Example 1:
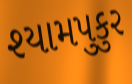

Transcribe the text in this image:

શ્યામપુકુર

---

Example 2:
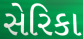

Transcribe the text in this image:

સેરિકા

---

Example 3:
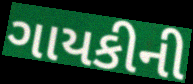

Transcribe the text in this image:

ગાયકીની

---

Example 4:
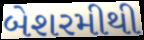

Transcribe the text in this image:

બેશરમીથી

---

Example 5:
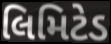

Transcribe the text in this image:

લિમિટેડ